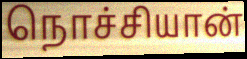
நொச்சியான்